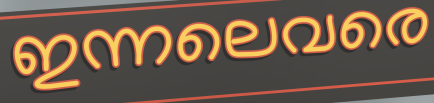
ഇന്നലെവരെ